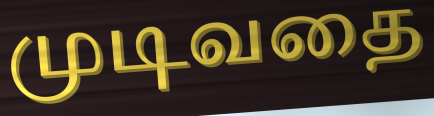
முடிவதை